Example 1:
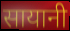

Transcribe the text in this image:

सायानी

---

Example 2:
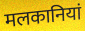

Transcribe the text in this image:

मलकानियां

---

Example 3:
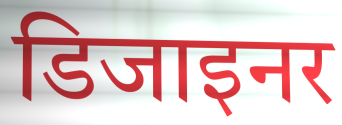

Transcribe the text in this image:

डिजाइनर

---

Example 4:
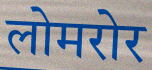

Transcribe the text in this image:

लोमरोर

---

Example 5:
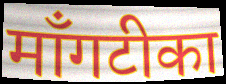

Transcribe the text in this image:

माँगटीका